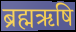
ब्रह्मऋषि